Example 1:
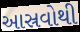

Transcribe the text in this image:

આસ્રવોથી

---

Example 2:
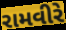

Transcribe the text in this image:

રામવીરે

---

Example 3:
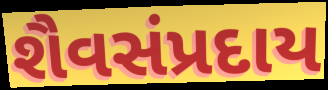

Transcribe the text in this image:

શૈવસંપ્રદાય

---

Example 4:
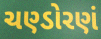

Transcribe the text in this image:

ચણ્ડોરણં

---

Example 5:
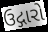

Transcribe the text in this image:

ઉદ્ગારો